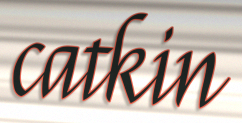
catkin